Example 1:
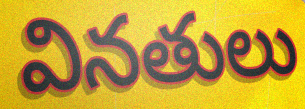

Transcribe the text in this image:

వినతులు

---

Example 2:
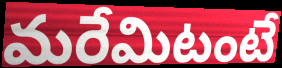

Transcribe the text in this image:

మరేమిటంటే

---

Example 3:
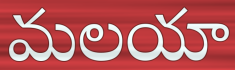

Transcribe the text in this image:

మలయా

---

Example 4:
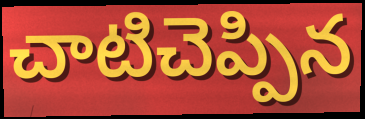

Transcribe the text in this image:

చాటిచెప్పిన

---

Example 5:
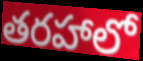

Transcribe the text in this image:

తరహాలో